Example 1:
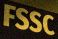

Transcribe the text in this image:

FSSC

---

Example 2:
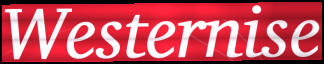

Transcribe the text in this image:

Westernise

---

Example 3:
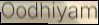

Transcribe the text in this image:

Oodhiyam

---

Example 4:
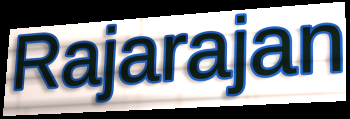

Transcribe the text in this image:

Rajarajan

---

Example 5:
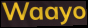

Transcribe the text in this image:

Waayo